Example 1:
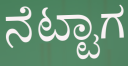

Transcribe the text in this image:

ನೆಟ್ಟಾಗ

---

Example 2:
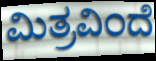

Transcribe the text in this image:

ಮಿತ್ರವಿಂದೆ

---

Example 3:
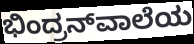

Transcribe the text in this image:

ಭಿಂದ್ರನ್‌ವಾಲೆಯ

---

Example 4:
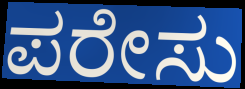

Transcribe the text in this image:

ಪರೇಸು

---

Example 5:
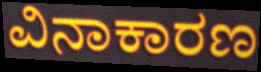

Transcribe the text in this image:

ವಿನಾಕಾರಣ